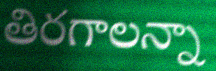
తిరగాలన్నా